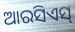
ଆରସିଏସ୍